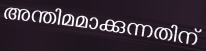
അന്തിമമാക്കുന്നതിന്